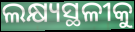
ଲକ୍ଷ୍ୟସ୍ଥଳୀକୁ